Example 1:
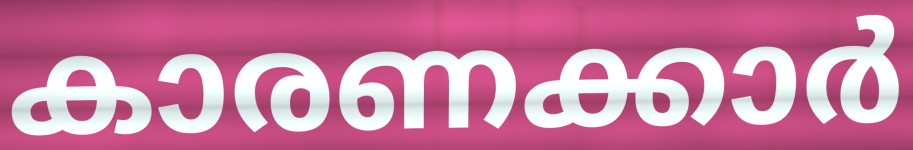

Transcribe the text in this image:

കാരണക്കാർ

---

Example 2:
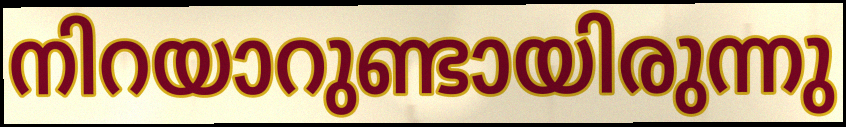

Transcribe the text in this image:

നിറയാറുണ്ടായിരുന്നു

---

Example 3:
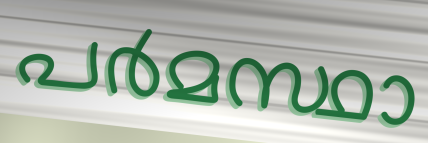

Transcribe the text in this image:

പർമസ്ഥാ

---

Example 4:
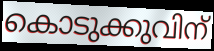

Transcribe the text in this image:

കൊടുക്കുവിന്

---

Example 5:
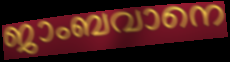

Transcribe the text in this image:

ജാംബവാനെ